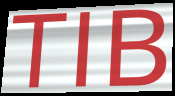
TIB